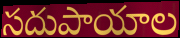
సదుపాయాల